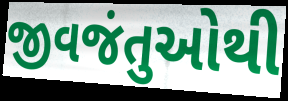
જીવજંતુઓથી